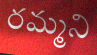
రమ్మని